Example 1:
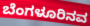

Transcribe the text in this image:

ಬೆಂಗಳೂರಿನವ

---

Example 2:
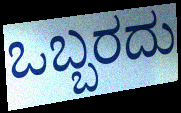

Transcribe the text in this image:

ಒಬ್ಬರದು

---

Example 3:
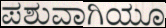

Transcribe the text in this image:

ಪಶುವಾಗಿಯೂ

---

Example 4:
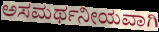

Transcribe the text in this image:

ಅಸಮರ್ಥನೀಯವಾಗಿ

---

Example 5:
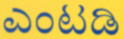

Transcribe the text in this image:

ಎಂಟಡಿ